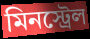
মিনস্ট্রেল